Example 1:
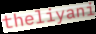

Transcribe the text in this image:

theliyani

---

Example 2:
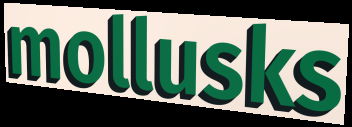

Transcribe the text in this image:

mollusks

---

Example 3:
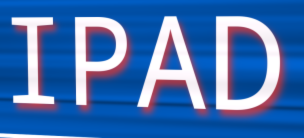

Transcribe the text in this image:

IPAD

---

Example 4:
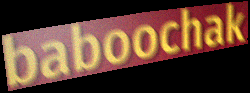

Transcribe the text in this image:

baboochak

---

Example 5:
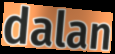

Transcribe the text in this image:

dalan